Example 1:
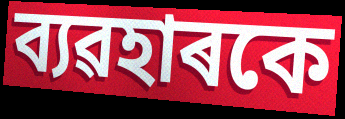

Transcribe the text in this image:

ব্যৱহাৰকে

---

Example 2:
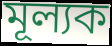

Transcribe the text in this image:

মূল্যক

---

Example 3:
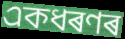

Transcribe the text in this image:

একধৰণৰ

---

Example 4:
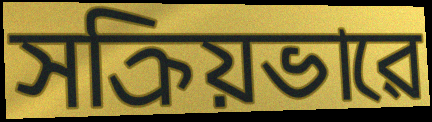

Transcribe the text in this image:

সক্ৰিয়ভাৱে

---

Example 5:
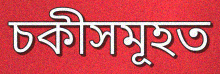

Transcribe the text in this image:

চকীসমূহত